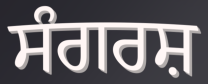
ਸੰਗਰਸ਼